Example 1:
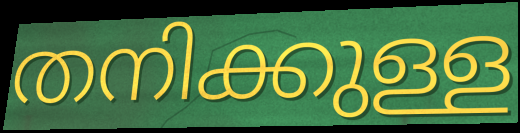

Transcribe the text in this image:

തനിക്കുള്ള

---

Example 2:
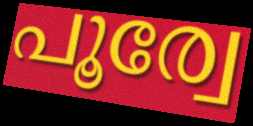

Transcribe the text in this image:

പൂര്വേ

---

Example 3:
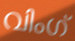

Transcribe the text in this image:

വിംഗ്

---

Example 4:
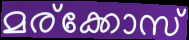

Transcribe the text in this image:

മര്ക്കോസ്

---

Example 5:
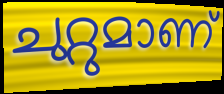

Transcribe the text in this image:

ചുറ്റുമാണ്